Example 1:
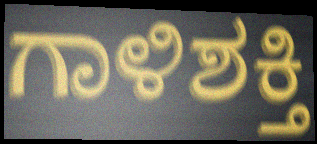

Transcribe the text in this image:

ಗಾಳಿಶಕ್ತಿ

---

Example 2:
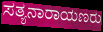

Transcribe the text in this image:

ಸತ್ಯನಾರಾಯಣರು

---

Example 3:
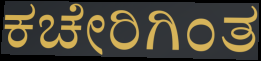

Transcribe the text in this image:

ಕಚೇರಿಗಿಂತ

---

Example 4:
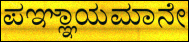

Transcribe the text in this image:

ಪಞ್ಞಾಯಮಾನೇ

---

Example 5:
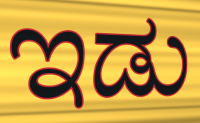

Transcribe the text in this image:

ಇಡು